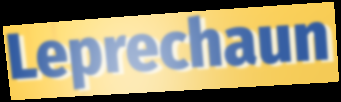
Leprechaun